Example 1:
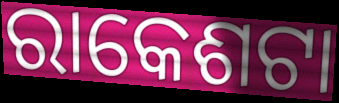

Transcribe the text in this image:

ରାକେଶଟା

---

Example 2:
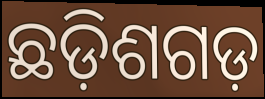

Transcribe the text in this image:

ଛଡ଼ିଶଗଡ଼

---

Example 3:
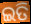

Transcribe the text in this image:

ଇତି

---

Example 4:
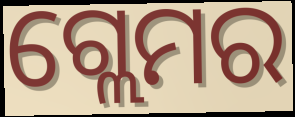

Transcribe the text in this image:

ଗ୍ଲେମର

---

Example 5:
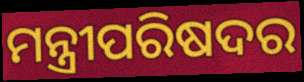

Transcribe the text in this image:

ମନ୍ତ୍ରୀପରିଷଦର